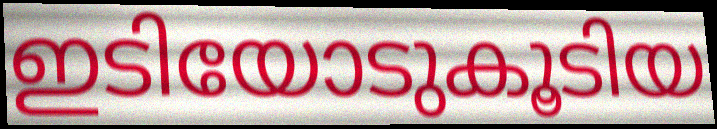
ഇടിയോടുകൂടിയ